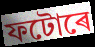
ফটোৰে